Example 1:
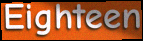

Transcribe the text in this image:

Eighteen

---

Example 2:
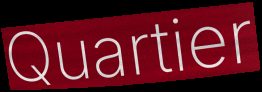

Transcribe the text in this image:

Quartier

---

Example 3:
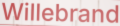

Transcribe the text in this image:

Willebrand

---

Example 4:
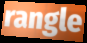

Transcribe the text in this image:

rangle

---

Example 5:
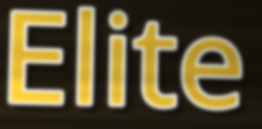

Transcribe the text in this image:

Elite